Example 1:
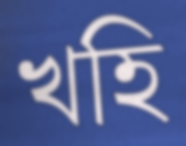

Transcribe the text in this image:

খহি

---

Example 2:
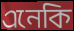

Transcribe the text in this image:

এনেকি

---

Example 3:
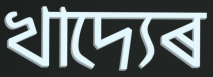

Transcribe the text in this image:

খাদ্যেৰ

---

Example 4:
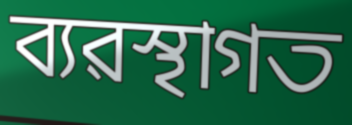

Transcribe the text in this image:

ব্যৱস্থাগত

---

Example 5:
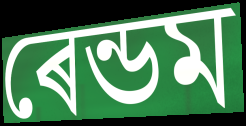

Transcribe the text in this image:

ৰেন্ডম